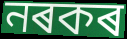
নৰকৰ